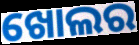
ଖୋଲର